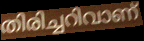
തിരിച്ചറിവാണ്